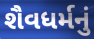
શૈવધર્મનું